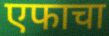
एफाचा